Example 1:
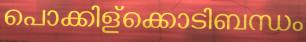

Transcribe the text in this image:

പൊക്കിള്ക്കൊടിബന്ധം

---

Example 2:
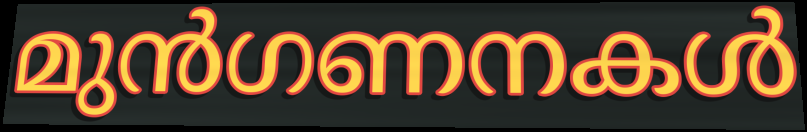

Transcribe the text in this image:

മുൻഗണനകൾ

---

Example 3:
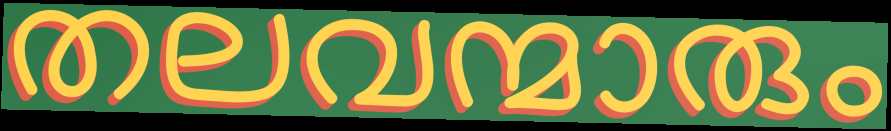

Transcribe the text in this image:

തലവന്മാരും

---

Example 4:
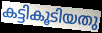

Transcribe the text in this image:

കട്ടികൂടിയതു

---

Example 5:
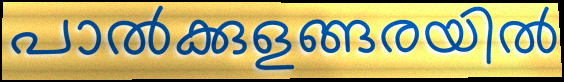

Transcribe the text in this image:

പാൽക്കുളങ്ങരയിൽ